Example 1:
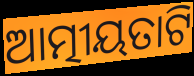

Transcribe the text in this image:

ଆତ୍ମୀୟତାଟି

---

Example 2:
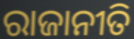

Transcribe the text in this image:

ରାଜାନୀତି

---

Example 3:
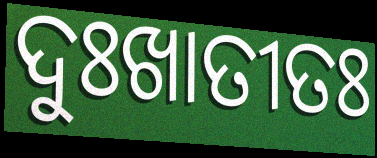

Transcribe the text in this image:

ଦୁଃଖାତୀତଃ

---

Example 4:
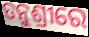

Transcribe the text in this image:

ତନୁଶ୍ରୀରେ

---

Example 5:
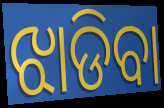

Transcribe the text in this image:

ଝାଡିବା